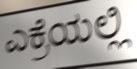
ಎಕ್ರೆಯಲ್ಲಿ